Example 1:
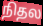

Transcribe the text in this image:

நிதல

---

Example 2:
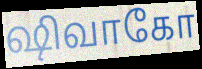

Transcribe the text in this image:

ஷிவாகோ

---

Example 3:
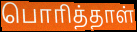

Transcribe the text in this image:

பொரித்தாள்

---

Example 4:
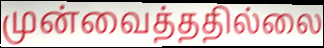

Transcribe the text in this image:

முன்வைத்ததில்லை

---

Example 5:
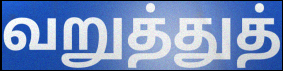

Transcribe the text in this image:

வறுத்துத்